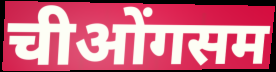
चीओंगसम